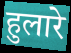
हुलारे